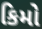
કિમો